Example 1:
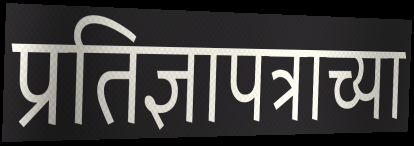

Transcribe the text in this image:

प्रतिज्ञापत्राच्या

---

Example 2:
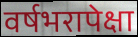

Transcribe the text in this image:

वर्षभरापेक्षा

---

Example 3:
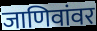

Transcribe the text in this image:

जाणिवांवर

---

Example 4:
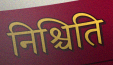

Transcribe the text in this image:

निश्चिति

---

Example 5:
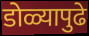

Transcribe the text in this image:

डोळ्यापुढे